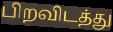
பிறவிடத்து